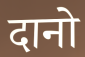
दानो